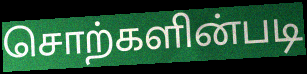
சொற்களின்படி